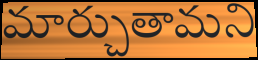
మార్చుతామని